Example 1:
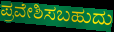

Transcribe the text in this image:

ಪ್ರವೇಶಿಸಬಹುದು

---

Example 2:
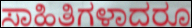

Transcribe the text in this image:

ಸಾಹಿತಿಗಳಾದರೂ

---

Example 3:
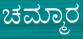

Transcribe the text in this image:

ಚಮ್ಮಾರ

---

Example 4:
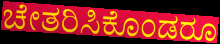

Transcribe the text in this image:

ಚೇತರಿಸಿಕೊಂಡರೂ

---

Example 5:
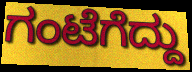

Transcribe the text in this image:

ಗಂಟೆಗೆದ್ದು